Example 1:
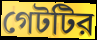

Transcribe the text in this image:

গেটটির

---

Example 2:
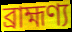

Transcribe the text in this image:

ব্রাহ্মণ্য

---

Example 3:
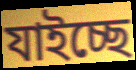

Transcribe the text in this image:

যাইচ্ছে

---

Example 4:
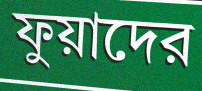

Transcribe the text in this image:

ফুয়াদের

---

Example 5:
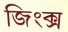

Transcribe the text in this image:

জিংক্স